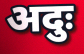
अदुः